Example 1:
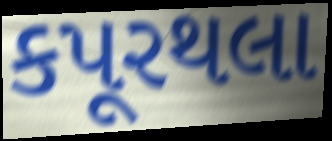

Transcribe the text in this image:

કપૂરથલા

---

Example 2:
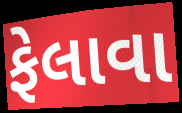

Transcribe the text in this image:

ફેલાવા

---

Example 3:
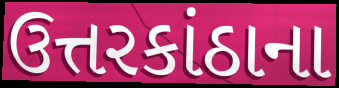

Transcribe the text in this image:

ઉત્તરકાંઠાના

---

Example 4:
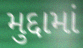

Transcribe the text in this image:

મુદ્દામાં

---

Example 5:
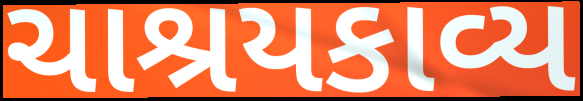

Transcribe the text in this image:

ચાશ્રયકાવ્ય